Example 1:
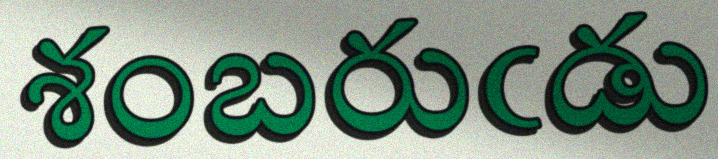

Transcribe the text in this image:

శంబరుఁడు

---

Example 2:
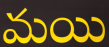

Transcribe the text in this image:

మయి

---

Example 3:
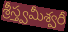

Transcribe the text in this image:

శ్రీస్త్వమీశ్వరీ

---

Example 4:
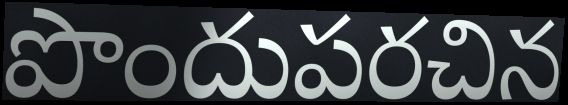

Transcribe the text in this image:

పొందుపరచిన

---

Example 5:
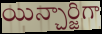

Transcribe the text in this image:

యిన్చార్జిగా